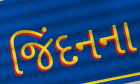
જિંદનના